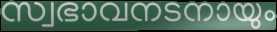
സ്വഭാവനടനായും